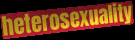
heterosexuality